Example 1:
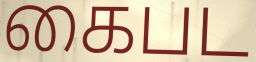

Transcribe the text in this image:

கைபட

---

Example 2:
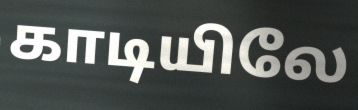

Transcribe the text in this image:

காடியிலே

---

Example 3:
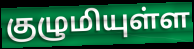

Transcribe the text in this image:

குழுமியுள்ள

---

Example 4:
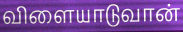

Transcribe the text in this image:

விளையாடுவான்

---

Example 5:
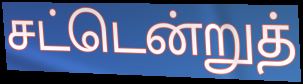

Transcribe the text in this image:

சட்டென்றுத்